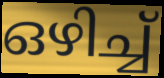
ഒഴിച്ച്